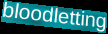
bloodletting